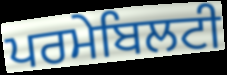
ਪਰਮੇਬਿਲਟੀ